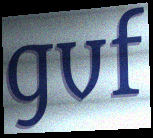
guf